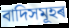
বাদিসমূহৰ